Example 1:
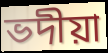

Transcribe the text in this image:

ভদীয়া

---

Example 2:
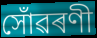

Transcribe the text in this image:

সোঁৱৰণী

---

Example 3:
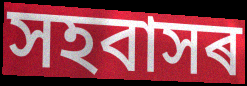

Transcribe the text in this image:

সহবাসৰ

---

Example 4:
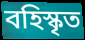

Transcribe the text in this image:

বহিস্কৃত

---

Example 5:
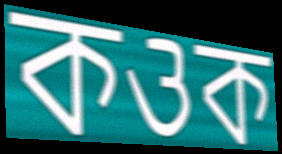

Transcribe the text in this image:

কওক